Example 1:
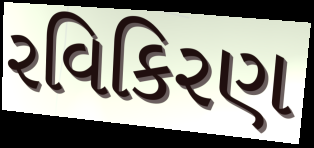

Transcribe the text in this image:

રવિકિરણ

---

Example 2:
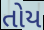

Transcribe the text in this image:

તોય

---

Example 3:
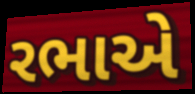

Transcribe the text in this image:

રભાએ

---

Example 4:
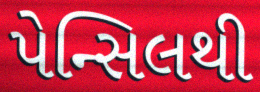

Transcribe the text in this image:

પેન્સિલથી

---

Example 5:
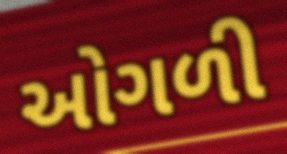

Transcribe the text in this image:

ઓગળી